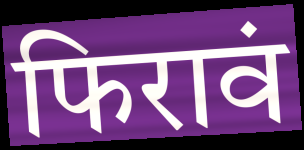
फिरावं